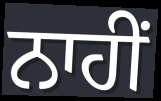
ਨਾਹੀਂ